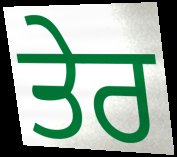
ਤੇਰ